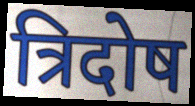
त्रिदोष